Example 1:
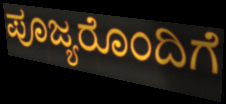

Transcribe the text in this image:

ಪೂಜ್ಯರೊಂದಿಗೆ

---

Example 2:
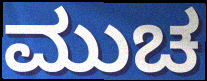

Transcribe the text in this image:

ಮುಚ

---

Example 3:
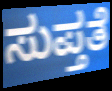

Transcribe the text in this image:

ಸುಪ್ತತೆ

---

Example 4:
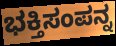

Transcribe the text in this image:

ಭಕ್ತಿಸಂಪನ್ನ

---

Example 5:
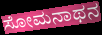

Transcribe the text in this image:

ಸೋಮನಾಥನ